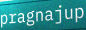
pragnajup